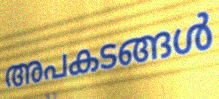
അപകടങ്ങൾ